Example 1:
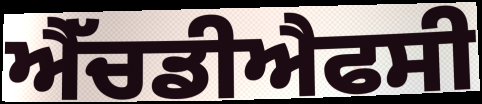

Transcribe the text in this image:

ਐੱਚਡੀਐਫਸੀ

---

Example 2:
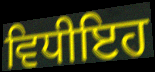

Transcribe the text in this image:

ਵਿਧੀਇਹ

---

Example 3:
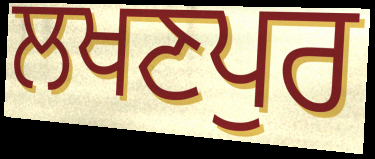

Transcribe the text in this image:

ਲਖਣਪੁਰ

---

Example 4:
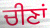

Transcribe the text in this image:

ਚੀਣਾਂ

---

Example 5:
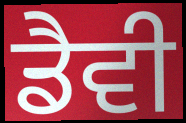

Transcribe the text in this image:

ਡੈਵੀ